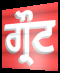
ਗ੍ਰੌਟ